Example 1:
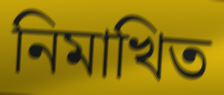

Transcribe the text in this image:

নিমাখিত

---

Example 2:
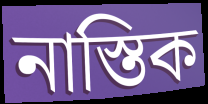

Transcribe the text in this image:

নাস্তিক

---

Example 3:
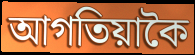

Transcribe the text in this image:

আগতিয়াকৈ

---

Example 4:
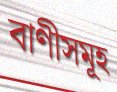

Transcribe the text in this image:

বাণীসমূহ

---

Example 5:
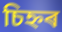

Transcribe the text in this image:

চিহ্নৰ